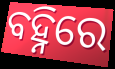
ବହ୍ନିରେ